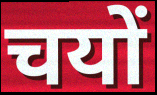
चयों